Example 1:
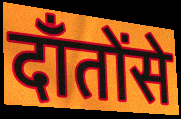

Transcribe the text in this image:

दाँतोंसे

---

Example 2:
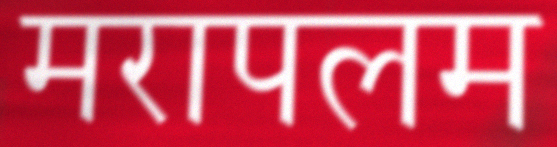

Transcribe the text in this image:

मरापलम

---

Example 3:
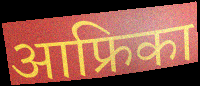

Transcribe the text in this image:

आफ्रिका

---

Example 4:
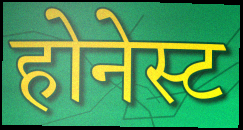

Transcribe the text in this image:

होनेस्ट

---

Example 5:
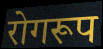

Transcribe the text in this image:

रोगरूप